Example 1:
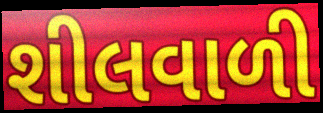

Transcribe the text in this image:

શીલવાળી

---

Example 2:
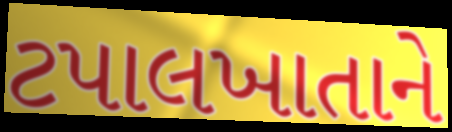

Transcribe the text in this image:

ટપાલખાતાને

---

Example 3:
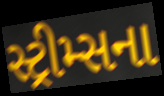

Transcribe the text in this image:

સ્ટ્રીમ્સના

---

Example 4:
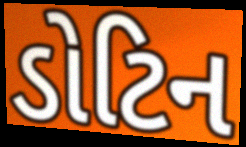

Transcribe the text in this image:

ડોટિન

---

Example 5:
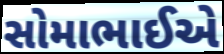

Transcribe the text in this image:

સોમાભાઈએ